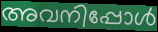
അവനിപ്പോൾ